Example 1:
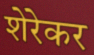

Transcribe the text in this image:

शेरेकर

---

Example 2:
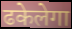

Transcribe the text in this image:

ढकेलेगा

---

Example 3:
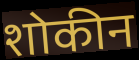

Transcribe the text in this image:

शोकीन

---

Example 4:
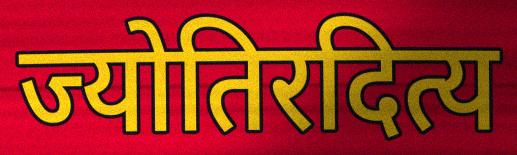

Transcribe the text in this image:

ज्योतिरदित्य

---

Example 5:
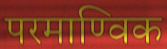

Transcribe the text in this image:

परमाण्विक